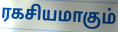
ரகசியமாகும்